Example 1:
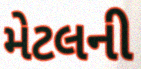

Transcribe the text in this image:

મેટલની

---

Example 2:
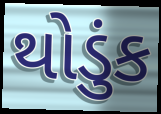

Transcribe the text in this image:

થોડુંક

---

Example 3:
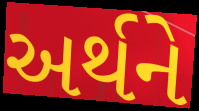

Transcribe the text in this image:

અર્થને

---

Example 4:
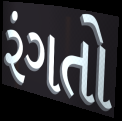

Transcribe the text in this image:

રંગતો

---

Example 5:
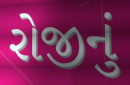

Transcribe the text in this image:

રોજીનું